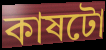
কাষটো